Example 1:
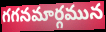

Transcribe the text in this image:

గగనమార్గమున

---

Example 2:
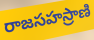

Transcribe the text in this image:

రాజసహస్రాణి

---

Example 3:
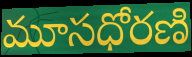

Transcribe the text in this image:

మూసధోరణి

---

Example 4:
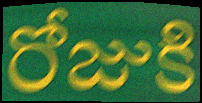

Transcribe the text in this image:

రోజుకి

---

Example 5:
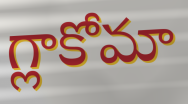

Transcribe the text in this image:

గ్లాకోమా